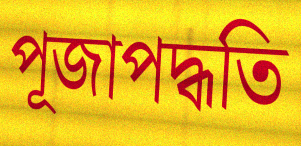
পূজাপদ্ধতি